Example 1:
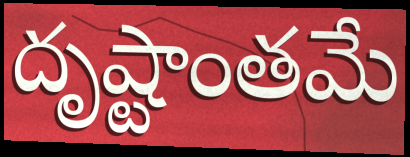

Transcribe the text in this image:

దృష్టాంతమే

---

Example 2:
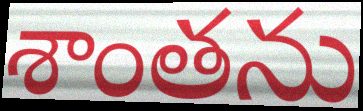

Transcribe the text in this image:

శాంతను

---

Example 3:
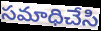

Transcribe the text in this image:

సమాధిచేసి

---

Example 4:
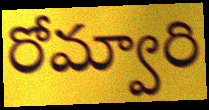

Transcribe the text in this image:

రోమ్వారి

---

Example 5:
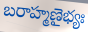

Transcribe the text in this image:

బరాహ్మణైభ్యః